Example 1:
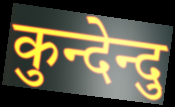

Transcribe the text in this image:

कुन्देन्दु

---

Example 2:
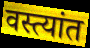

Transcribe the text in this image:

वस्त्यांत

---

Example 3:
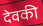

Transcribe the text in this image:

देवकी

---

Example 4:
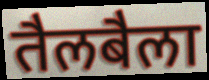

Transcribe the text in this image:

तैलबैला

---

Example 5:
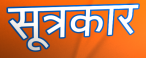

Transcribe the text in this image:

सूत्रकार